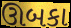
ઊબકા